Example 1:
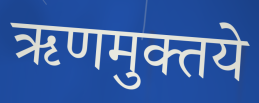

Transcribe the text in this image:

ऋणमुक्तये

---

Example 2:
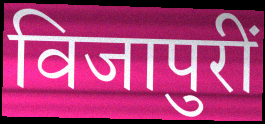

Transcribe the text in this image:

विजापुरीं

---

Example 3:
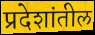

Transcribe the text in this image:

प्रदेशांतील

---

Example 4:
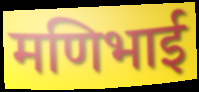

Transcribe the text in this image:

मणिभाई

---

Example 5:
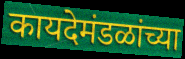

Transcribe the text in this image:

कायदेमंडळांच्या